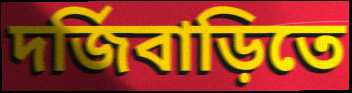
দর্জিবাড়িতে